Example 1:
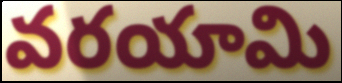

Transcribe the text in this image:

వరయామి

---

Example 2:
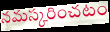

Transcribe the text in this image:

నమస్కరించటం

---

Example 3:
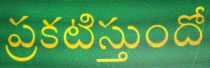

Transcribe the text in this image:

ప్రకటిస్తుందో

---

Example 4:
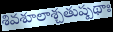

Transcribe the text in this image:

శివశూలాశ్చతుష్పథాః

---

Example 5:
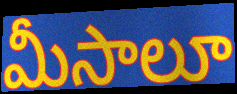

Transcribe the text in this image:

మీసాలూ